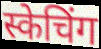
स्केचिंग